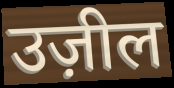
उज़ील